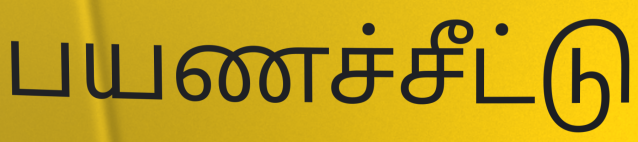
பயணச்சீட்டு